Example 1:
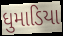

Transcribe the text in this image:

ધુમાડિયા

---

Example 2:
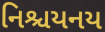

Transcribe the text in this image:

નિશ્ચયનય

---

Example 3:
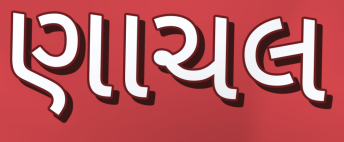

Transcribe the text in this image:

ણાચલ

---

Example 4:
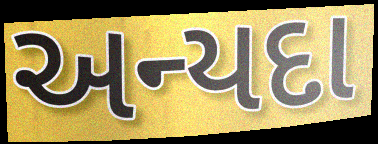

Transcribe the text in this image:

અન્યદા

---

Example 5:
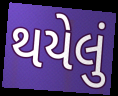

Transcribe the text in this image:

થયેલું